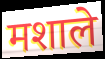
मशाले